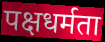
पक्षधर्मता